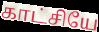
காட்சியே